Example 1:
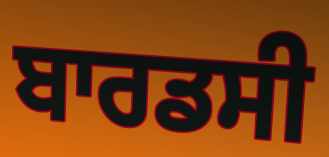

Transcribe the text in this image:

ਬਾਰਡਸੀ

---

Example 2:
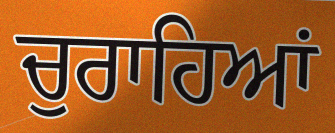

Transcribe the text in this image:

ਚੁਰਾਹਿਆਂ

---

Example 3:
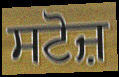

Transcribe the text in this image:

ਸਟੋਜ਼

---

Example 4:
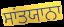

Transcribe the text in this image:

ਸਾਂਤਯਾਨਾ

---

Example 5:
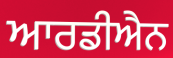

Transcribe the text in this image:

ਆਰਡੀਐਨ